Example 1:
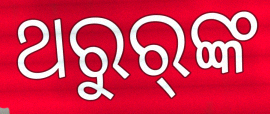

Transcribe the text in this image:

ଥରୁର୍‌ଙ୍କ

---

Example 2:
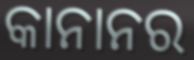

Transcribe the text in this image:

କାନାନର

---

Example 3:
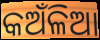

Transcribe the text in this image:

କଅଁଳିଆ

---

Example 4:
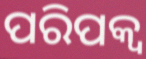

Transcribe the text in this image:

ପରିପକ୍ଵ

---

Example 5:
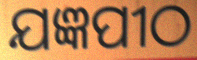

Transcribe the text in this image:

ଯଜ୍ଞପୀଠ